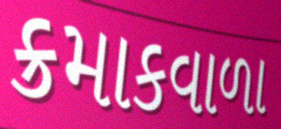
ક્રમાકવાળા